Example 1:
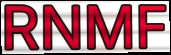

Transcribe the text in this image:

RNMF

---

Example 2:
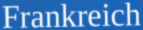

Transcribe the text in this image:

Frankreich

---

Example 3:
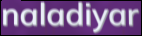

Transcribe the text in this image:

naladiyar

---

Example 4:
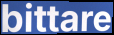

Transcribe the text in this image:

bittare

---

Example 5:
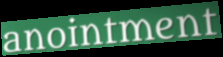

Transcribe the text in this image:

anointment